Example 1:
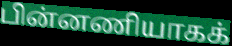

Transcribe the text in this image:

பின்னணியாகக்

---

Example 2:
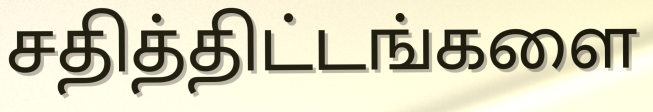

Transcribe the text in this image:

சதித்திட்டங்களை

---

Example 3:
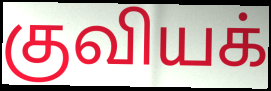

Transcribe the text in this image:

குவியக்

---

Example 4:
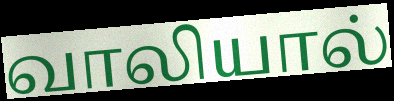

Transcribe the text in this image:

வாலியால்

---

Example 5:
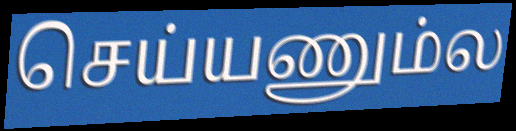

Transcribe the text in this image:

செய்யணும்ல